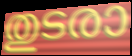
തുടരാ